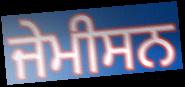
ਜੇਮੀਸਨ